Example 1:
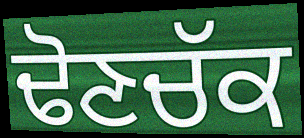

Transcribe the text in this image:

ਢੋਣਚੱਕ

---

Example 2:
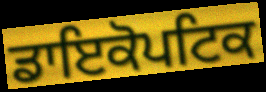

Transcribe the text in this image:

ਡਾਇਕੋਪਟਿਕ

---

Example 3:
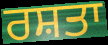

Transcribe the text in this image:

ਰਸ਼ਤਾ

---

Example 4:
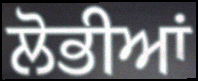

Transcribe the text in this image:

ਲੋਭੀਆਂ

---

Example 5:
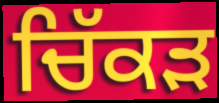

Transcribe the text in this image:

ਚਿੱਕੜ